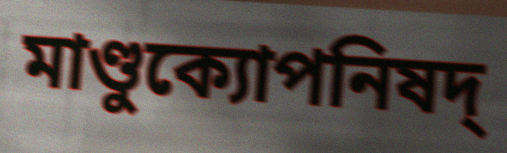
মাণ্ডুক্যোপনিষদ্